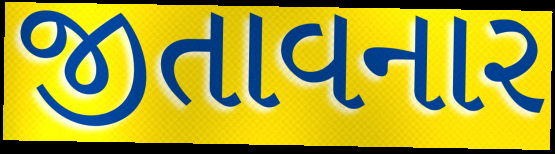
જીતાવનાર